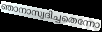
ഞാനാസ്വദിച്ചതെന്നോ